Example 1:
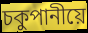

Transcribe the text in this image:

চকুপানীয়ে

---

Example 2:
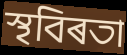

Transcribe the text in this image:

স্থবিৰতা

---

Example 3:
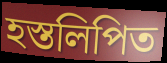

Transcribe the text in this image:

হস্তলিপিত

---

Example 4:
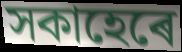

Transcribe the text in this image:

সকাহেৰে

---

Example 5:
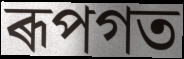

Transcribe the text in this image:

ৰূপগত